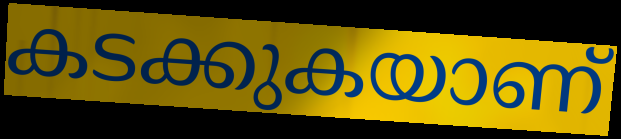
കടക്കുകയാണ്